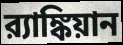
র‍্যাঙ্কিয়ান